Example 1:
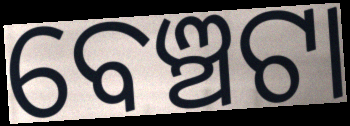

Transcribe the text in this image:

ବେଞ୍ଚଟା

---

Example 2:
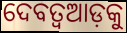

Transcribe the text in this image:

ଦେବତ୍ୱଆଡ଼କୁ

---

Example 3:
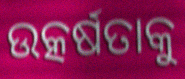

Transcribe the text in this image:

ଉତ୍କର୍ଷତାକୁ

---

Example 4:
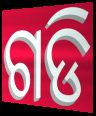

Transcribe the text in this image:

ଗଡି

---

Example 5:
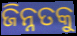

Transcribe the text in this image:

ଜିନ୍ନତକୁ